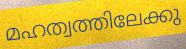
മഹത്വത്തിലേക്കു